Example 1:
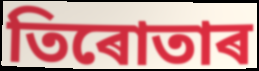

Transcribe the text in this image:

তিৰোতাৰ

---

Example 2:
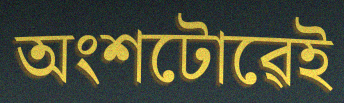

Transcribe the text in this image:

অংশটোৱেই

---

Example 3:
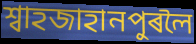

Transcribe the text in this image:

শ্বাহজাহানপুৰলৈ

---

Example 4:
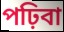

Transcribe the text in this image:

পঢ়িবা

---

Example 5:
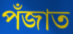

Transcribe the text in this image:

পঁজাত